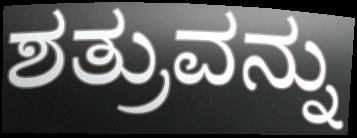
ಶತ್ರುವನ್ನು